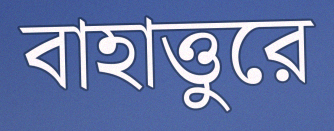
বাহাত্তুরে